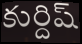
కుర్దిష్